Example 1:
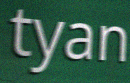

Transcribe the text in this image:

tyan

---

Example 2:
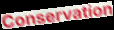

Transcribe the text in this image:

Conservation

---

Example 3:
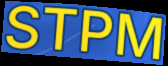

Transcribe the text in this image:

STPM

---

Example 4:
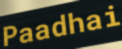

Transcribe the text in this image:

Paadhai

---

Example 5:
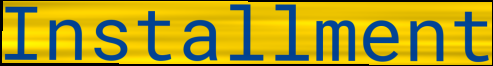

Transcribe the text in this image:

Installment